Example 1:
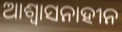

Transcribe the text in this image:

ଆଶ୍ୱାସନାହୀନ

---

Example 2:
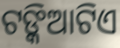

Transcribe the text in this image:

ଟଙ୍କିଆଟିଏ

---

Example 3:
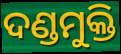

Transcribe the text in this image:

ଦଣ୍ଡମୁକ୍ତି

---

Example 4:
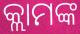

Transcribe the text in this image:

କ୍ଲାମଙ୍କ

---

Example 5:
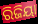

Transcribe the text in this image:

ରିଜିୟା